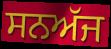
ਸਨਅੱਜ